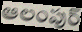
ఆలంపుర్